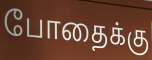
போதைக்கு